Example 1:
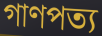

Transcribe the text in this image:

গাণপত্য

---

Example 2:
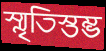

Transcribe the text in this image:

স্মৃতিস্তম্ভ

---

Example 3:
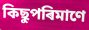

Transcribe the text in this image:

কিছুপৰিমাণে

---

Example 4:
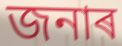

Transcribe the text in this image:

জনাৰ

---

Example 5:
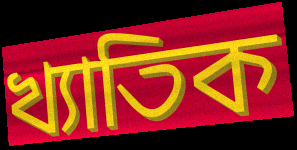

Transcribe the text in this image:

খ্যাতিক